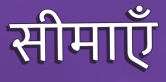
सीमाएँ